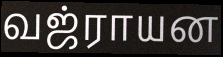
வஜ்ராயன